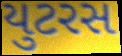
યુટરસ